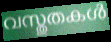
വസ്തുതകൾ